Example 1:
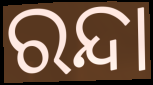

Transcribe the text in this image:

ରନ୍ଦା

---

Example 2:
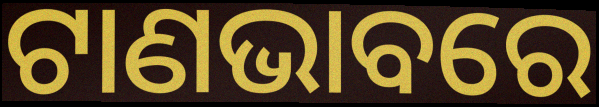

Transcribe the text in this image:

ଟାଣଭାବରେ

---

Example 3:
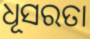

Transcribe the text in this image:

ଧୂସରତା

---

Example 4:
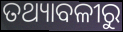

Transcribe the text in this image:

ତଥ୍ୟାବଳୀରୁ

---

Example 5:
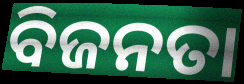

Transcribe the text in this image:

ବିଜନତା